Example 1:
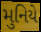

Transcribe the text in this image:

મુનિયે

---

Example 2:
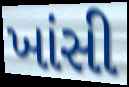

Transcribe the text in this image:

ખાંસી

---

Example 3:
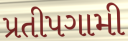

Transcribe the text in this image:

પ્રતીપગામી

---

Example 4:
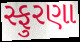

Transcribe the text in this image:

સ્ફુરણા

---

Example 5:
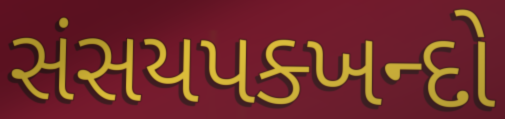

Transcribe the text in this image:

સંસયપક્ખન્દો